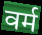
वर्म